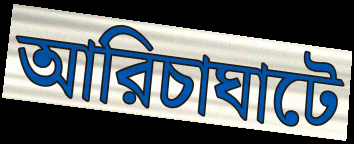
আরিচাঘাটে